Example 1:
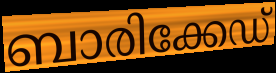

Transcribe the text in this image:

ബാരിക്കേഡ്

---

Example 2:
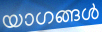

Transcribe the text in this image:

യാഗങ്ങൾ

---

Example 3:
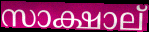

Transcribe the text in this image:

സാക്ഷാല്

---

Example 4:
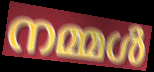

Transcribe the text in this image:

നമ്മൾ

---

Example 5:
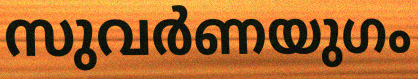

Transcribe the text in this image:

സുവർണയുഗം